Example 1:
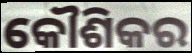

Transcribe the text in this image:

କୌଶିକର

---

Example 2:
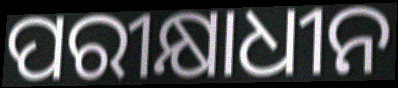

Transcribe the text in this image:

ପରୀକ୍ଷାଧୀନ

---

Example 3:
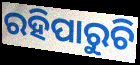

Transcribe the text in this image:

ରହିପାରୁଚି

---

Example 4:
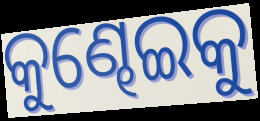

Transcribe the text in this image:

କୁଣ୍ଢେଇକୁ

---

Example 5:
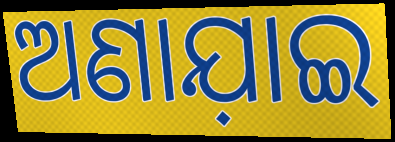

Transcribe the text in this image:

ଅଣାଯ଼ାଇ